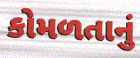
કોમળતાનું